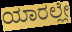
ಯಾರಲ್ಲೇ